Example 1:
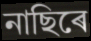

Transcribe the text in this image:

নাছিৰে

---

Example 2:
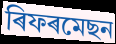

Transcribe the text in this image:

ৰিফৰমেছন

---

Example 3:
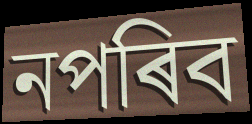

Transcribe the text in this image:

নপৰিব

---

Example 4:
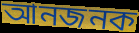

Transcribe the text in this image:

আনজনক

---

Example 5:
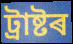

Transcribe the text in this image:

ট্ৰাষ্টৰ